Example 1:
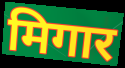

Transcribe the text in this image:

मिगार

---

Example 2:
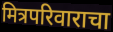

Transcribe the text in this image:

मित्रपरिवाराचा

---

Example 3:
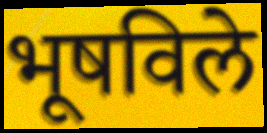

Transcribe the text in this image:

भूषविले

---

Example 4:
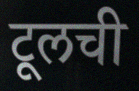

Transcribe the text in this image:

टूलची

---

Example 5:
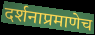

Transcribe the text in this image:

दर्शनाप्रमाणेच